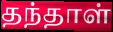
தந்தாள்